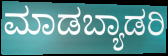
ಮಾಡಬ್ಯಾಡರಿ